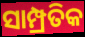
ସାମ୍ପ୍ରତିକ